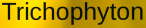
Trichophyton